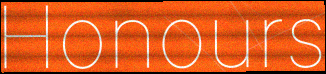
Honours